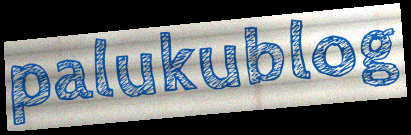
palukublog